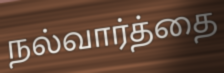
நல்வார்த்தை